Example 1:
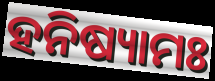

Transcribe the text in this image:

ହନିଷ୍ୟାମଃ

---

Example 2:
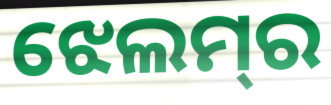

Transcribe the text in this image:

ଝେଲମ୍‌ର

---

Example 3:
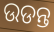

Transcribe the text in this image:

ଉଡନ୍ତ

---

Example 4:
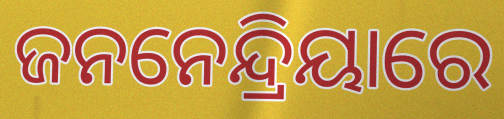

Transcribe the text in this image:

ଜନନେନ୍ଦ୍ରିୟାରେ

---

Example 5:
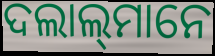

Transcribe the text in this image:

ଦଲାଲ୍‍ମାନେ